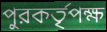
পুরকর্তৃপক্ষ